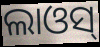
ଲାଓସ୍